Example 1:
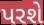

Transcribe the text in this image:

પરશે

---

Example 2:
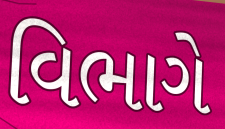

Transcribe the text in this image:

વિભાગે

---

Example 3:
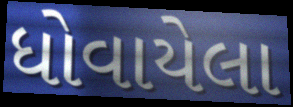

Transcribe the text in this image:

ધોવાયેલા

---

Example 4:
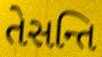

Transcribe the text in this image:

તેસન્તિ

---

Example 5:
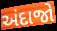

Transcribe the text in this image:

અંદાજો